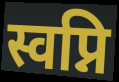
स्वप्नि